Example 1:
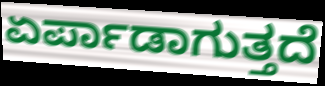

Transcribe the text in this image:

ಏರ್ಪಾಡಾಗುತ್ತದೆ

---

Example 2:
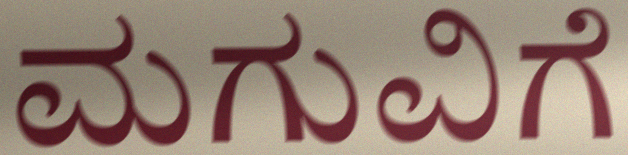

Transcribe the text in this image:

ಮಗುವಿಗೆ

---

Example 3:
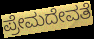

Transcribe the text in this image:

ಪ್ರೇಮದೇವತೆ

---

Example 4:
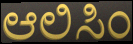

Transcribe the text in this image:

ಆಲಿಸಿಂ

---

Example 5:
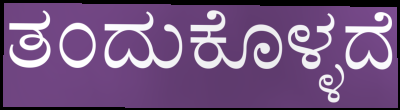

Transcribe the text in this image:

ತಂದುಕೊಳ್ಳದೆ